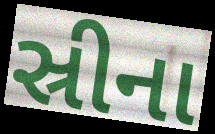
સ્રીના